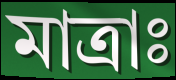
মাত্রাঃ